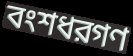
বংশধরগণ